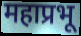
महाप्रभू